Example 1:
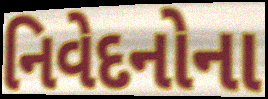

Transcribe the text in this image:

નિવેદનોના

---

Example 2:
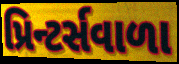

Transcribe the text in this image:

પ્રિન્ટર્સવાળા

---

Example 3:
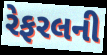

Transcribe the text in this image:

રેફરલની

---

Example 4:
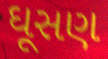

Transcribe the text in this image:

ઘૂસણ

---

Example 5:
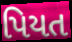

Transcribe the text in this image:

પિયત